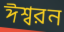
ঈশ্বরন